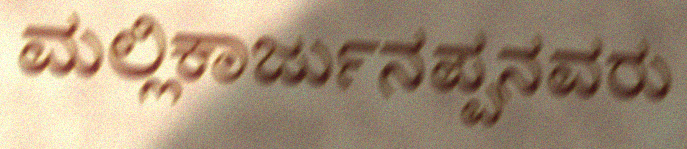
ಮಲ್ಲಿಕಾರ್ಜುನಪ್ಪನವರು